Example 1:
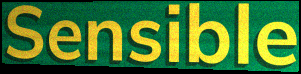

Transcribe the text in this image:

Sensible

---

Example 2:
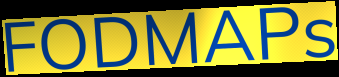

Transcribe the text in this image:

FODMAPs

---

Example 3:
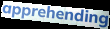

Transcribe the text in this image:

apprehending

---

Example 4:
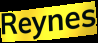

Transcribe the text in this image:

Reynes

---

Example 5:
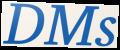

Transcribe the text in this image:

DMs